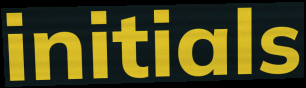
initials